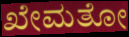
ಖೇಮತೋ